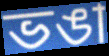
ভঙা